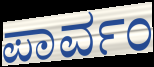
ಪಾರ್ವಂ